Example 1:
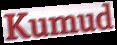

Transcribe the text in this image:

Kumud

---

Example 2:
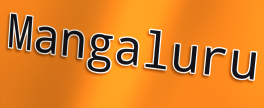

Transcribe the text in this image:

Mangaluru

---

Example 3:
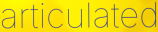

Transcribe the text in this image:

articulated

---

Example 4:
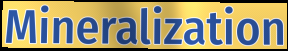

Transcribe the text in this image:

Mineralization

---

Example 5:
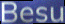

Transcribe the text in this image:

Besu